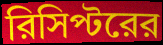
রিসিপ্টরের